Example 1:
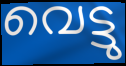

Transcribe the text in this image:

വെട്ടു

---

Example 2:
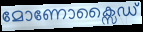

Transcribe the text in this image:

മോണോക്സൈഡ്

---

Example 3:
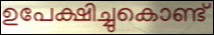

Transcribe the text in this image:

ഉപേക്ഷിച്ചുകൊണ്ട്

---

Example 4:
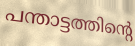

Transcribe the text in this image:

പന്താട്ടത്തിന്റെ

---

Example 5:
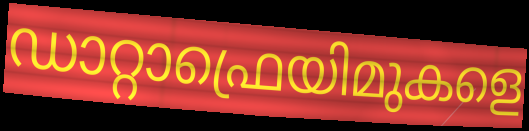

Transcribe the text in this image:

ഡാറ്റാഫ്രെയിമുകളെ